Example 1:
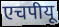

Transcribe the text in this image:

एचपीयू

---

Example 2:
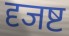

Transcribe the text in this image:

दृजष्ट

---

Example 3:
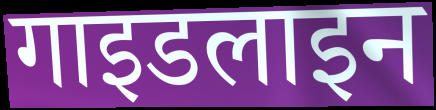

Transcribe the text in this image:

गाइडलाइन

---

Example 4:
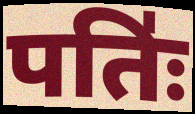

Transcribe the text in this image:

पतिः॑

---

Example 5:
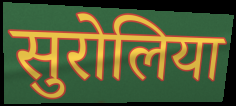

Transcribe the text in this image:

सुरोलिया